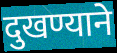
दुखण्याने